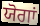
ਯੋਗਾਂ